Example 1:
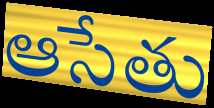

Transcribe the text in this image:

ఆసేతు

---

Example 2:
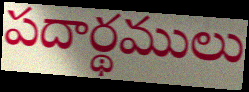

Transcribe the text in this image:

పదార్థములు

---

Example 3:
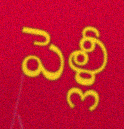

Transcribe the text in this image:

పెళ్లీ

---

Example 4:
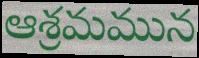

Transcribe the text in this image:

ఆశ్రమమున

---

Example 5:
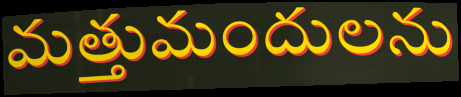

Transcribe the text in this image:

మత్తుమందులను